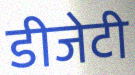
डीजेटी